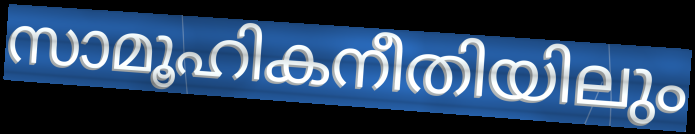
സാമൂഹികനീതിയിലും